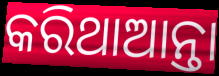
କରିଥାଆନ୍ତା